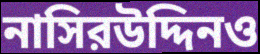
নাসিরউদ্দিনও